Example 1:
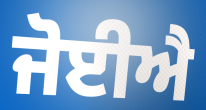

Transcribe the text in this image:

ਜੋਈਐ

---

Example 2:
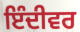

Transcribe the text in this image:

ਇੰਦੀਵਰ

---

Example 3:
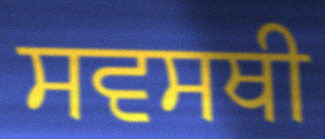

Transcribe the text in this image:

ਸਵਸਥੀ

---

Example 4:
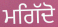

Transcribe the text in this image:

ਮਗਿੱਦੋ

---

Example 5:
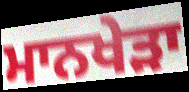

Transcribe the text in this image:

ਮਾਨਖੇੜਾ